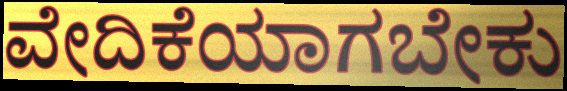
ವೇದಿಕೆಯಾಗಬೇಕು